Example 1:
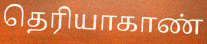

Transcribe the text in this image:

தெரியாகாண்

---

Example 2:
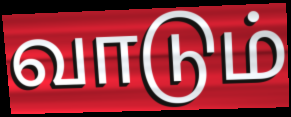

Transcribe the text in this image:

வாடும்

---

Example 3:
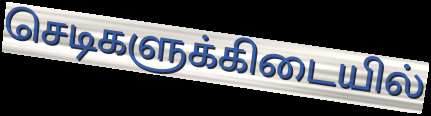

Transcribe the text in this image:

செடிகளுக்கிடையில்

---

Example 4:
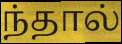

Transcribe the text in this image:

ந்தால்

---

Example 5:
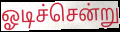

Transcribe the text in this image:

ஓடிச்சென்று